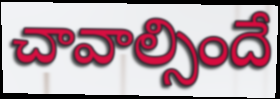
చావాల్సిందే